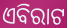
ଏବିରାଟ